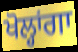
ਖੋਲ੍ਹਾਂਗਾ